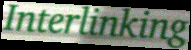
Interlinking